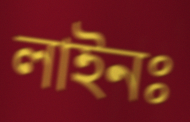
লাইনঃ